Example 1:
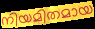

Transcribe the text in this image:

നിയമിതമായ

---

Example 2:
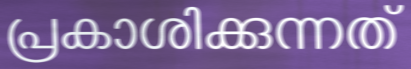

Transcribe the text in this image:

പ്രകാശിക്കുന്നത്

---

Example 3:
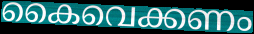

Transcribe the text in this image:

കൈവെക്കണം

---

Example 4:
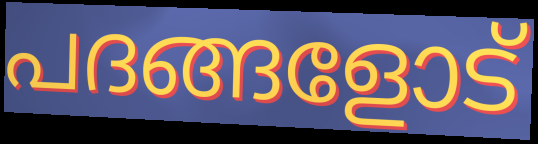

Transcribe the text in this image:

പദങ്ങളോട്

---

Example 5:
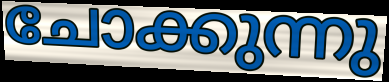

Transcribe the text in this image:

ചോക്കുന്നു